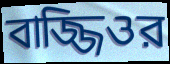
বাজ্জিওর